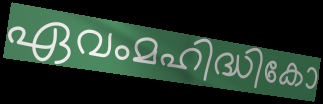
ഏവംമഹിദ്ധികോ